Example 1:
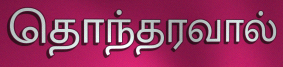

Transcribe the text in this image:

தொந்தரவால்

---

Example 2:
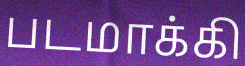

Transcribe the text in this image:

படமாக்கி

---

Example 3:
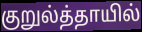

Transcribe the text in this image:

குறுல்த்தாயில்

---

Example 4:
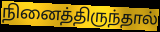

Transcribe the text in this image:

நினைத்திருந்தால்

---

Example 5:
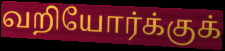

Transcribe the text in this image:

வறியோர்க்குக்